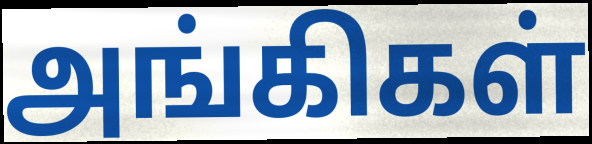
அங்கிகள்